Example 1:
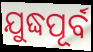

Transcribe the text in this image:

ଯୁଦ୍ଧପୂର୍ବ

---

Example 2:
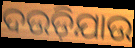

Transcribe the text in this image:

ଦଉଡ଼ିଯାଉ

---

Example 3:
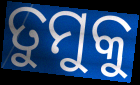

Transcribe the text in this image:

ତୁମୁକୁ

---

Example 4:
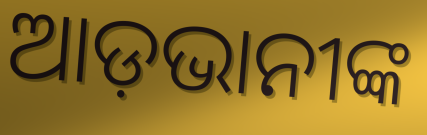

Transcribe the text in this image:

ଆଡ଼ଭାନୀଙ୍କ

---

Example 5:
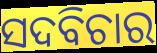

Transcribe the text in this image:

ସଦବିଚାର